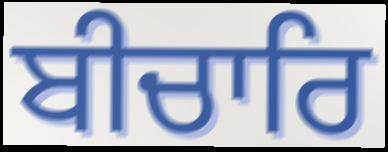
ਬੀਚਾਰਿ